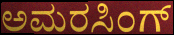
ಅಮರಸಿಂಗ್